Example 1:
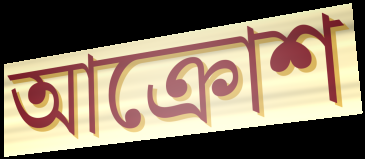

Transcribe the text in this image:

আক্রোশ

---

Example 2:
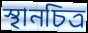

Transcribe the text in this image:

স্থানচিত্র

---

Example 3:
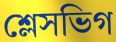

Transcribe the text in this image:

শ্লেসভিগ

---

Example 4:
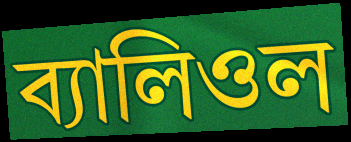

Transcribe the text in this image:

ব্যালিওল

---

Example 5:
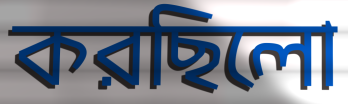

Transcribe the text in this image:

করছিলো